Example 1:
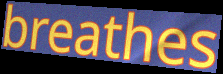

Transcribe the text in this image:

breathes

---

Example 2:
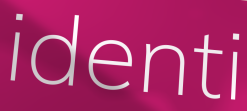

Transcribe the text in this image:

identi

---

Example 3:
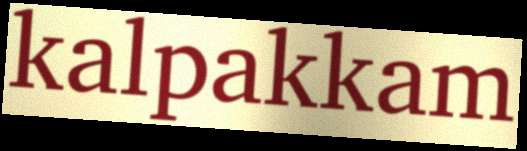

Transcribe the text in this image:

kalpakkam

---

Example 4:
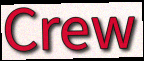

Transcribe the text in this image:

Crew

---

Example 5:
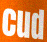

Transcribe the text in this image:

cud